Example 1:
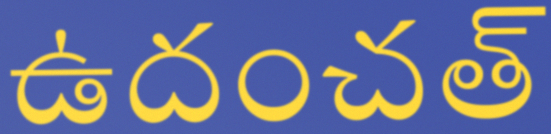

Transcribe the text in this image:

ఉదంచత్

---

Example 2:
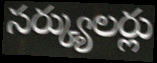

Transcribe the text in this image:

సర్క్యులర్లు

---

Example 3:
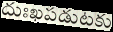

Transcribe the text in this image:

దుఃఖపడుటకు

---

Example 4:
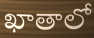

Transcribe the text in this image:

ఖాతాలో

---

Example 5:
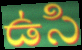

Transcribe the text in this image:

ఉసి